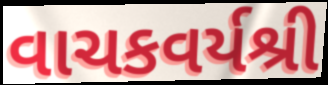
વાચકવર્યશ્રી